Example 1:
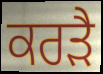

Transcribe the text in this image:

ਕਰੜੈ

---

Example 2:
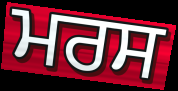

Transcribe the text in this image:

ਮਰਸ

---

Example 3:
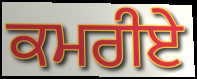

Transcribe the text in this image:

ਕਮਰੀਏ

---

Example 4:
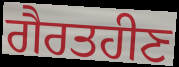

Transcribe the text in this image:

ਗੈਰਤਹੀਣ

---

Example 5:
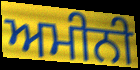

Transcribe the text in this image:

ਅਮੀਨੀ